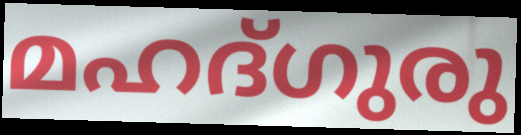
മഹദ്ഗുരു